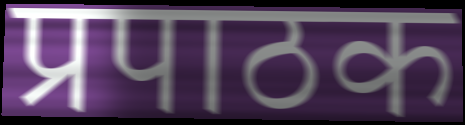
प्रपाठक